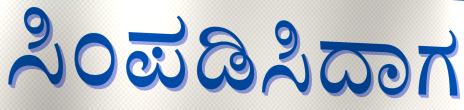
ಸಿಂಪಡಿಸಿದಾಗ